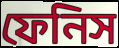
ফেনিস